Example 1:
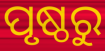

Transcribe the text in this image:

ପୃଷ୍ଠରୁ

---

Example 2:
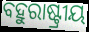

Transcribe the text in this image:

ବହୁରାଷ୍ଟ୍ରୀୟ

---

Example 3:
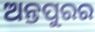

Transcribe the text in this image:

ଅନ୍ତପୁରର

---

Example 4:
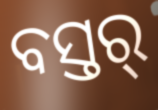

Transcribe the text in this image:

ବସ୍ତର୍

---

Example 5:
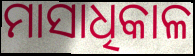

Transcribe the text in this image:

ମାସାଧିକାଳ